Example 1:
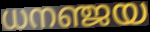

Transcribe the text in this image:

ധനഞ്ജയ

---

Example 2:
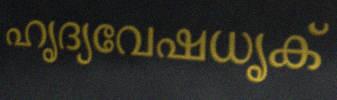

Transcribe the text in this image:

ഹൃദ്യവേഷധൃക്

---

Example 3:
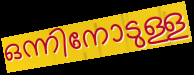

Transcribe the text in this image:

ഒന്നിനോടുള്ള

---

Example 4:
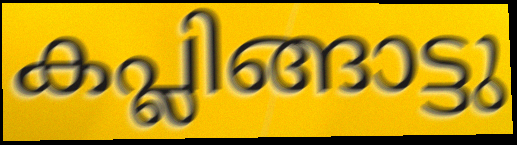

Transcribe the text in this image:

കപ്ലിങ്ങാട്ടു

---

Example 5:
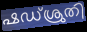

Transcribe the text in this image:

ഷഡ്ശ്രുതി